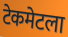
टेकमेटला